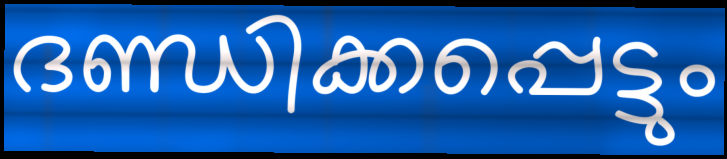
ദണ്ഡിക്കപ്പെട്ടും